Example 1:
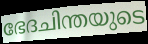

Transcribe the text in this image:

ഭേദചിന്തയുടെ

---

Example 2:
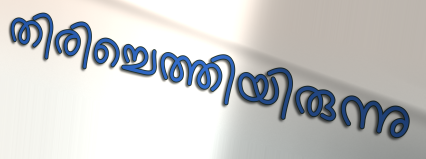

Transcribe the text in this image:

തിരിച്ചെത്തിയിരുന്നു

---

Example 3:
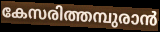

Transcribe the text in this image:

കേസരിത്തമ്പുരാൻ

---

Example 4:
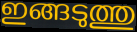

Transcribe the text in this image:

ഇങ്ങടുത്തു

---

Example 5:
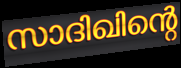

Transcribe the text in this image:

സാദിഖിന്റെ